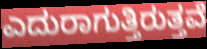
ಎದುರಾಗುತ್ತಿರುತ್ತವೆ